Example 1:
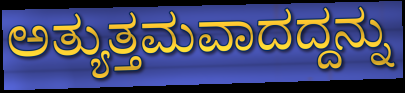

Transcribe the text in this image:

ಅತ್ಯುತ್ತಮವಾದದ್ದನ್ನು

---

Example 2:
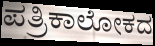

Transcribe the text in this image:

ಪತ್ರಿಕಾಲೋಕದ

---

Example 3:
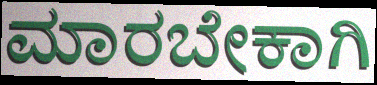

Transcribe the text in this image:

ಮಾರಬೇಕಾಗಿ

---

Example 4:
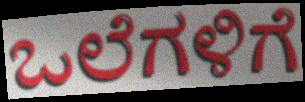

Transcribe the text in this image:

ಒಲೆಗಳಿಗೆ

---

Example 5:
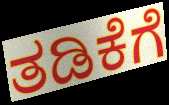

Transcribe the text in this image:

ತಡಿಕೆಗೆ